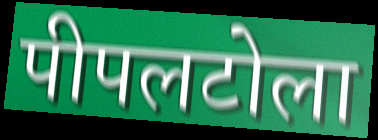
पीपलटोला